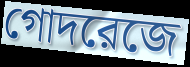
গোদরেজে